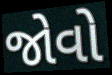
જોવો